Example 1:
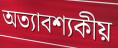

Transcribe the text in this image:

অত্যাবশ্যকীয়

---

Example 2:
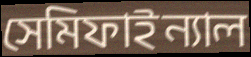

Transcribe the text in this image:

সেমিফাইন্যাল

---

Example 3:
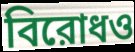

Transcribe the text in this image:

বিরোধও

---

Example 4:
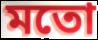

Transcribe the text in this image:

মতো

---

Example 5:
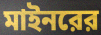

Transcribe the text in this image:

মাইনরের